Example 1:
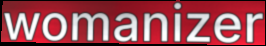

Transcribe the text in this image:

womanizer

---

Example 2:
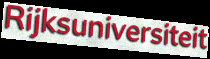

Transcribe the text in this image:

Rijksuniversiteit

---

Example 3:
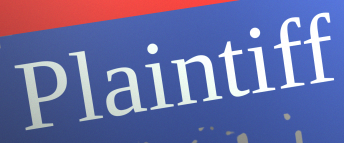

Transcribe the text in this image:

Plaintiff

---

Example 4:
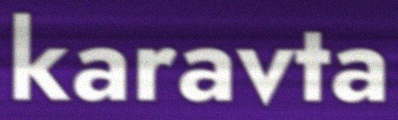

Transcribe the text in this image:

karavta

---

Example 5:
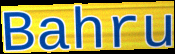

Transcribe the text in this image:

Bahru